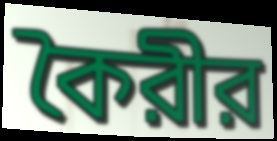
কৈরীর